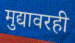
मुद्यावरही